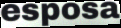
esposa